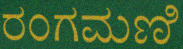
ರಂಗಮಣಿ